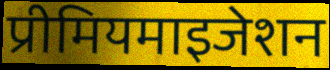
प्रीमियमाइजेशन